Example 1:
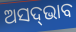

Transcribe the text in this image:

ଅସଦ୍‌ଭାବ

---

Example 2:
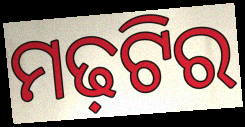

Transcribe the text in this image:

ମଢ଼ଟିର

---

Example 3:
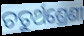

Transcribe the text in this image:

ଚତୁର୍ଥଶ୍ରେଣୀ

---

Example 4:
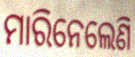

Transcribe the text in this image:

ମାରିନେଲେଣି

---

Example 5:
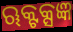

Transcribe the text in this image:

ୠକ୍ଟକ୍ସଜ୍ଞ